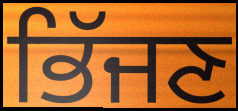
ਭਿੱਜਣ